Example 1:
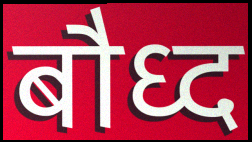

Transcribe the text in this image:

बौध्द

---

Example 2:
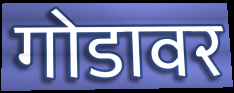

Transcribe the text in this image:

गोडावर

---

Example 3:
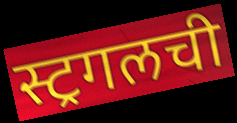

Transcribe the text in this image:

स्ट्रगलची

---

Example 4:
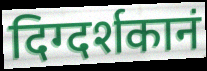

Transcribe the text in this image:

दिग्दर्शकानं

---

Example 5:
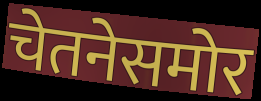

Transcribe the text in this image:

चेतनेसमोर